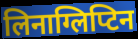
लिनाग्लिप्टिन